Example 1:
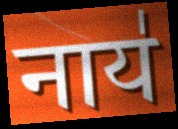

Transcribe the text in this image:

नाय॑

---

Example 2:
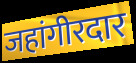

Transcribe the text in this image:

जहांगीरदार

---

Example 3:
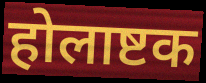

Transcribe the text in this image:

होलाष्टक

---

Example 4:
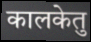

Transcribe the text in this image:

कालकेतु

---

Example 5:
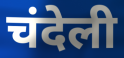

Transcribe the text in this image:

चंदेली